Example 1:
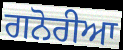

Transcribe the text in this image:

ਗਨੋਰੀਆ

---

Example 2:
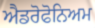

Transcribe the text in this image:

ਐਡਰੋਫੋਨਿਅਮ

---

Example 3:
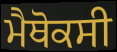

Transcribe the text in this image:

ਮੈਥੋਕਸੀ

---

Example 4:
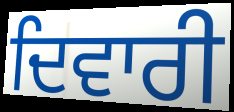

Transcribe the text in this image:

ਦਿਵਾਰੀ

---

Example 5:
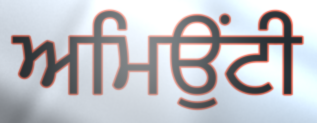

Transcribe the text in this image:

ਅਮਿਉਂਟੀ